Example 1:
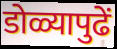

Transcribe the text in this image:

डोळ्यापुढें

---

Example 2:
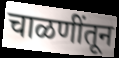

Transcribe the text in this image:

चाळणींतून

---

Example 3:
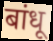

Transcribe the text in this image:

बांधू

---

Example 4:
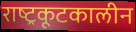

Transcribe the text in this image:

राष्ट्रकूटकालीन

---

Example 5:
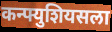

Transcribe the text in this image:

कन्फ्युशियसला